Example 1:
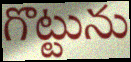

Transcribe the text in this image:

గొట్టును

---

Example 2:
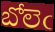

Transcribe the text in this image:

బోలెఁ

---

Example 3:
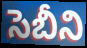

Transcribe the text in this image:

సెబీని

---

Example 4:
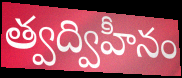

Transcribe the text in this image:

త్వద్విహీనం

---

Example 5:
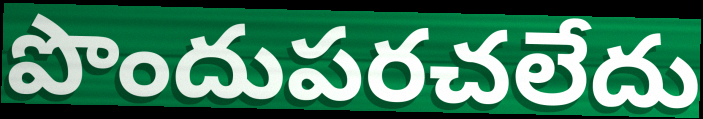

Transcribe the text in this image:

పొందుపరచలేదు